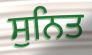
ਸੁਨਿਤ